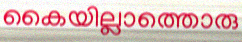
കൈയില്ലാത്തൊരു